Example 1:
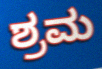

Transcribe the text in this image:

ಶ್ರಮ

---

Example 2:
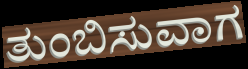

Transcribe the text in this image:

ತುಂಬಿಸುವಾಗ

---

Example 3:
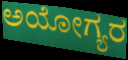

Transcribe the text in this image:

ಅಯೋಗ್ಯರ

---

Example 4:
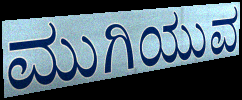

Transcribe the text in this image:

ಮುಗಿಯುವ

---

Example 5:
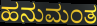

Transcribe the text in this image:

ಹನುಮಂತ